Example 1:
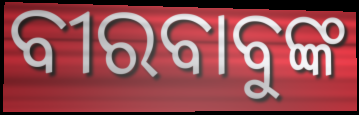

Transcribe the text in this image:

ବୀରବାବୁଙ୍କ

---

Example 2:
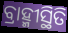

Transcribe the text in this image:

ବ୍ରାହ୍ମୀସ୍ଥିତି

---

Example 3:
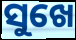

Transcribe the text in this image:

ସୁଖେ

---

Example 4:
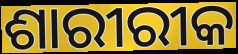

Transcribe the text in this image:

ଶାରୀରୀକ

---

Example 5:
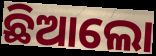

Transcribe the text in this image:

ଛିଆଲୋ